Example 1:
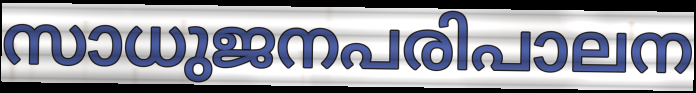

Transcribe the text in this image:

സാധുജനപരിപാലന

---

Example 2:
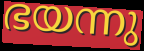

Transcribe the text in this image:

ഭയന്നു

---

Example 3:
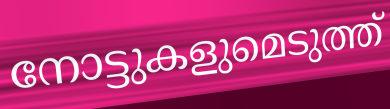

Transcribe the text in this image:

നോട്ടുകളുമെടുത്ത്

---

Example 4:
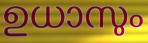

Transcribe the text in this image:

ഉധാസും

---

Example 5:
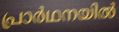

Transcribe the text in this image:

പ്രാർഥനയിൽ